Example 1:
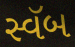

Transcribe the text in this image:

સ્વૅબ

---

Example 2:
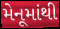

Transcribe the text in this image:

મેનૂમાંથી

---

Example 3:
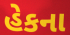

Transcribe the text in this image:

હેકના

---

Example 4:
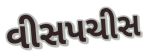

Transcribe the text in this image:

વીસપચીસ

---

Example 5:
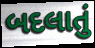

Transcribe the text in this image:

બદલાતું